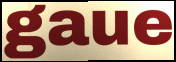
gaue